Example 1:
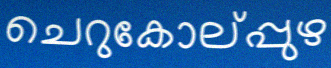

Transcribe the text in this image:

ചെറുകോല്പ്പുഴ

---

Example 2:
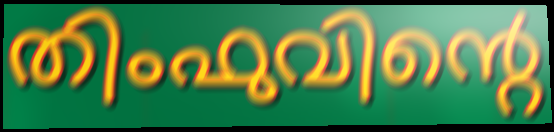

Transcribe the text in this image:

തിംഫുവിന്റെ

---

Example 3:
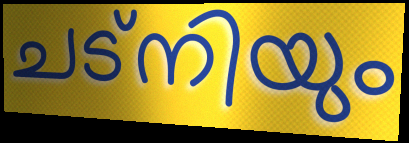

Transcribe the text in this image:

ചട്നിയും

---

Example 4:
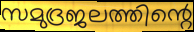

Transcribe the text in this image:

സമുദ്രജലത്തിന്റെ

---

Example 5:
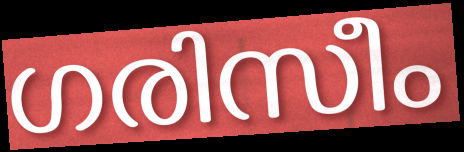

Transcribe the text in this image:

ഗരിസീം